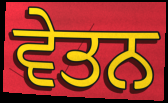
ਵੇਤਨ